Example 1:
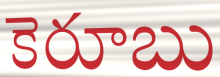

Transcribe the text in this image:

కెరూబు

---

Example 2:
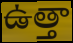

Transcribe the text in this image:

ఉత్తా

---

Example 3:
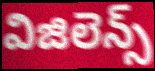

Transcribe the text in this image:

విజిలెన్స్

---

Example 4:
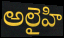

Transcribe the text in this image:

అలైహి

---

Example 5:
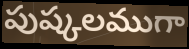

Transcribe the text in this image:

పుష్కలముగా